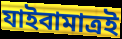
যাইবামাত্রই